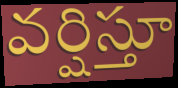
వర్షిస్తూ